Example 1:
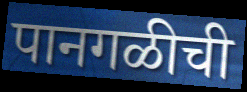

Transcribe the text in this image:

पानगळीची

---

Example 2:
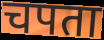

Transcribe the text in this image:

चपता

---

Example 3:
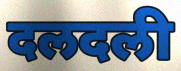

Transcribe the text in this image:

दलदली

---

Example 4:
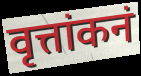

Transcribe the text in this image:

वृत्तांकनं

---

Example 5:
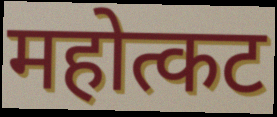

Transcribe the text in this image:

महोत्कट